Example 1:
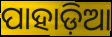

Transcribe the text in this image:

ପାହାଡ଼ିଆ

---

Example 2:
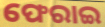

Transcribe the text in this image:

ଫେରାଇ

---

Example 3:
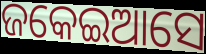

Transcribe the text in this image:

ଜକେଇଆସେ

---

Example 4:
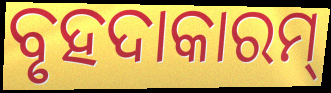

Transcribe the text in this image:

ବୃହଦାକାରମ୍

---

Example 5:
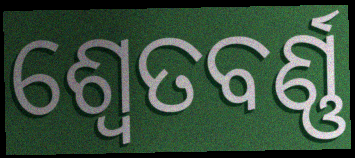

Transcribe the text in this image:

ଶ୍ୱେତବର୍ଣ୍ଣ